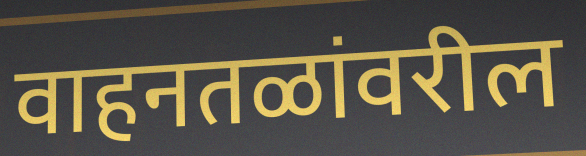
वाहनतळांवरील